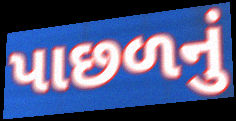
પાછળનું